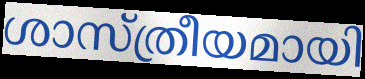
ശാസ്ത്രീയമായി